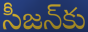
సీజన్‌కు